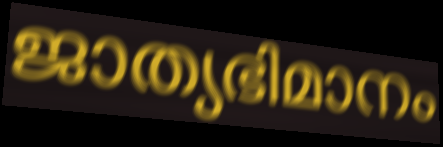
ജാത്യഭിമാനം